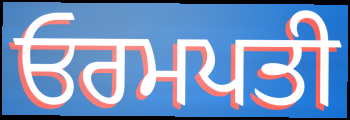
ਓਰਮਪਤੀ